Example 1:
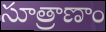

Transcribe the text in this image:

సూత్రాణాం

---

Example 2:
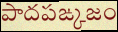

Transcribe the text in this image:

పాదపఙ్కజం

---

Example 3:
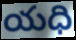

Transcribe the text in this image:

యధి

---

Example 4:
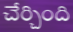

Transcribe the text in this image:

చేర్చింది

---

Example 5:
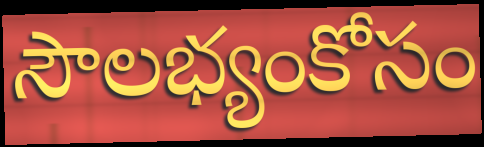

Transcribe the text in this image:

సౌలభ్యంకోసం